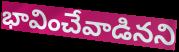
భావించేవాడినని